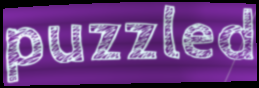
puzzled